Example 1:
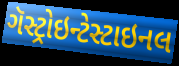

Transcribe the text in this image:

ગૅસ્ટ્રોઇન્ટેસ્ટાઇનલ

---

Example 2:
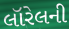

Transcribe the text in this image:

લૉરેલની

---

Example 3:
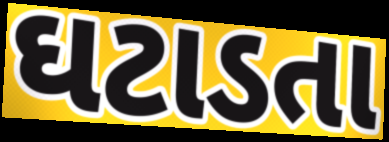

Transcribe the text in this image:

ઘટાડતા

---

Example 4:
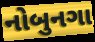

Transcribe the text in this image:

નોબુનગા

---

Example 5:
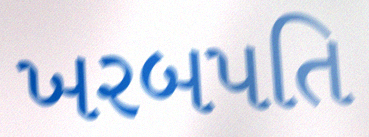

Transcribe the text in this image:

ખરબપતિ